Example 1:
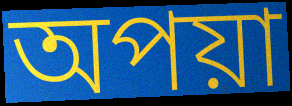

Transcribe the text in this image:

অপয়া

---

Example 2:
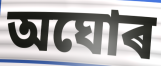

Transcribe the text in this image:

অঘোৰ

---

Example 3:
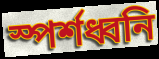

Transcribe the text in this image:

স্পৰ্শধ্বনি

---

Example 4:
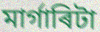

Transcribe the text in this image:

মাৰ্গাৰিটা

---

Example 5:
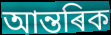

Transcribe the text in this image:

আন্তৰিক